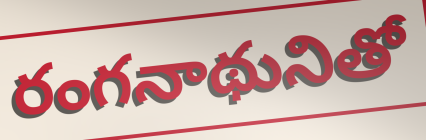
రంగనాథునితో